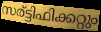
സര്ട്ടിഫിക്കറ്റും